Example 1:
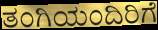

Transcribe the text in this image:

ತಂಗಿಯಂದಿರಿಗೆ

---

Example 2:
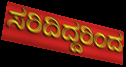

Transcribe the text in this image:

ಸರಿದಿದ್ದರಿಂದ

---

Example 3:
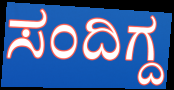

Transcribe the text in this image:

ಸಂದಿಗ್ದ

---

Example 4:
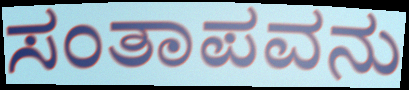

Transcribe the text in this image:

ಸಂತಾಪವನು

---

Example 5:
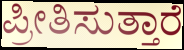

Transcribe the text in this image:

ಪ್ರೀತಿಸುತ್ತಾರೆ